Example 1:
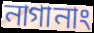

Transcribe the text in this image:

নাগানাং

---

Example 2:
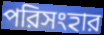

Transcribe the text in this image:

পরিসংহার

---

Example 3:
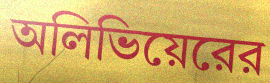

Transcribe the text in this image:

অলিভিয়েরের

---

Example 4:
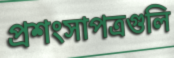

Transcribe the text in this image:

প্রশংসাপত্রগুলি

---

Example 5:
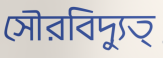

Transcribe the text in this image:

সৌরবিদ্যুত্